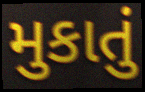
મુકાતું